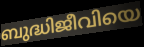
ബുദ്ധിജീവിയെ